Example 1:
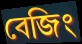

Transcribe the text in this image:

বেজিং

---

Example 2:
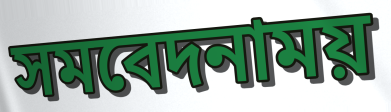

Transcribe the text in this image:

সমবেদনাময়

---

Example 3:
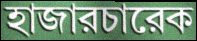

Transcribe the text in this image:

হাজারচারেক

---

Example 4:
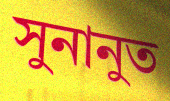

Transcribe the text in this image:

সুনানুত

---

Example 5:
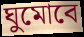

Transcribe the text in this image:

ঘুমোবে